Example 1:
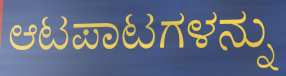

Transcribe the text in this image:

ಆಟಪಾಟಗಳನ್ನು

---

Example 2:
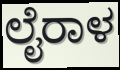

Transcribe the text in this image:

ಲೈರಾಳ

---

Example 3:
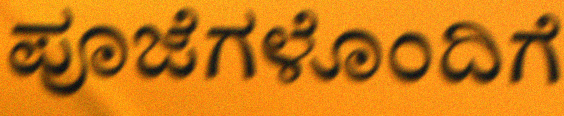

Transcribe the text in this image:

ಪೂಜೆಗಳೊಂದಿಗೆ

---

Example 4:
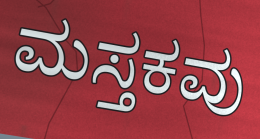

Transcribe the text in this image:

ಮಸ್ತಕವು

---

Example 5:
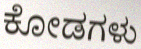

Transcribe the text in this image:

ಕೋಡಗಳು